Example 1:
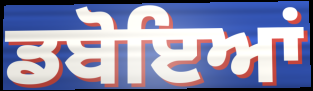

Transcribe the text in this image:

ਡਬੋਇਆਂ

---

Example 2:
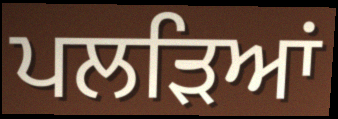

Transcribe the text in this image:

ਪਲੜਿਆਂ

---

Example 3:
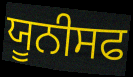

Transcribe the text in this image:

ਯੂਨੀਸਫ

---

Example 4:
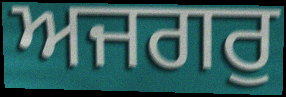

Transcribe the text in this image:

ਅਜਗਰੁ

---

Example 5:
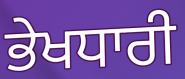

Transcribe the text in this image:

ਭੇਖਧਾਰੀ